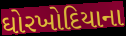
ઘોરખોદિયાના